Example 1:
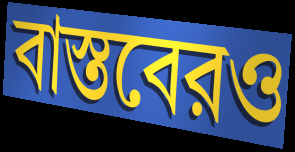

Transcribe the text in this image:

বাস্তবেরও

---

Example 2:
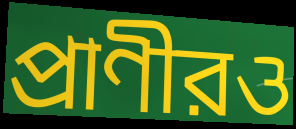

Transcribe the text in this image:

প্রাণীরও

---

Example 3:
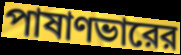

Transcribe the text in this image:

পাষাণভারের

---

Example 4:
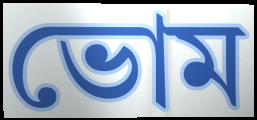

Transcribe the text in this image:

ভোম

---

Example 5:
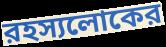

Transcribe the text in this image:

রহস্যলোকের